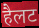
हैलट